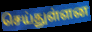
செய்துள்ளன